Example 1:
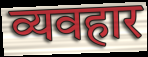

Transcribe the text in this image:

व्‍यवहार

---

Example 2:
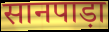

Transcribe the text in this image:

सानपाड़ा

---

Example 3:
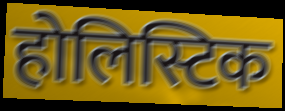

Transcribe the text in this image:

होलिस्टिक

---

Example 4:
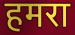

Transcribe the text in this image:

हमरा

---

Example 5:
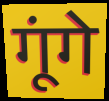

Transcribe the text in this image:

गूंगे